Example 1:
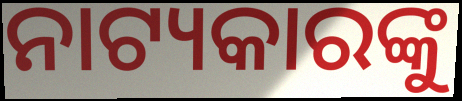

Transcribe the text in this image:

ନାଟ୍ୟକାରଙ୍କୁ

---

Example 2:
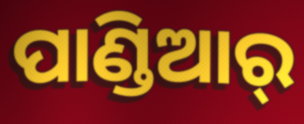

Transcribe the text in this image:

ପାଣ୍ଡିଆର୍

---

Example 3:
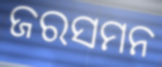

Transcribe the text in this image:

ଜରସମନ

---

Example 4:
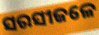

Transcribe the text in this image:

ସରସୀଜଳେ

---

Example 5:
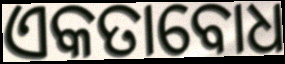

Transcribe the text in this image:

ଏକତାବୋଧ